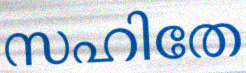
സഹിതേ